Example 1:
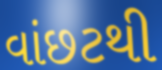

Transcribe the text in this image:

વાંછટથી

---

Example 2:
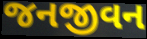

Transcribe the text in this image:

જનજીવન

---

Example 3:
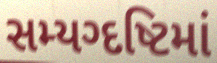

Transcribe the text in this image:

સમ્યગ્દષ્ટિમાં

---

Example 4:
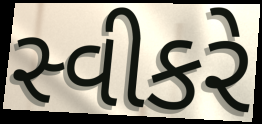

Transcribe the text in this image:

સ્વીકરે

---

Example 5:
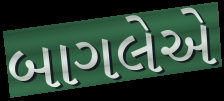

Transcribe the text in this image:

બાગલેએ